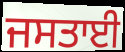
ਜਸਤਾਈ